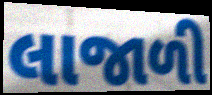
લાજાળી